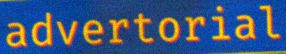
advertorial